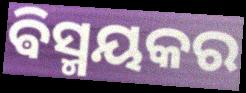
ଵିସ୍ମୟକର